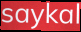
saykal